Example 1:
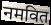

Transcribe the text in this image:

नमवित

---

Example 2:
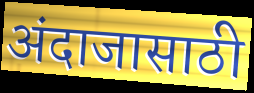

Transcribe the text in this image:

अंदाजासाठी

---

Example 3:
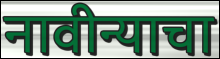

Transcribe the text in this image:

नावीन्याचा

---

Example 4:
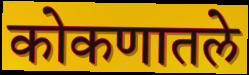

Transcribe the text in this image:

कोकणातले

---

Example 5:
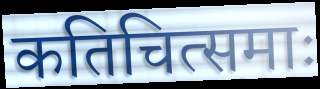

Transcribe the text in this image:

कतिचित्समाः